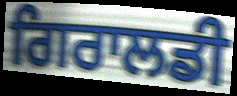
ਗਿਰਾਲਡੀ